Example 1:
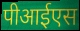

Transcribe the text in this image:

पीआईएस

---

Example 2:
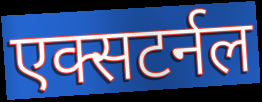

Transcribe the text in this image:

एक्सटर्नल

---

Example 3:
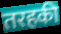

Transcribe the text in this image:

तरहकी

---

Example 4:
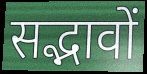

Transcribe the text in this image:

सद्भावों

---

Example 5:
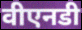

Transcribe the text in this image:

वीएनडी